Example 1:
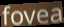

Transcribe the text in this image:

fovea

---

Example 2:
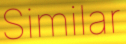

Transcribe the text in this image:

Similar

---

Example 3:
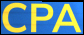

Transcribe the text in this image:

CPA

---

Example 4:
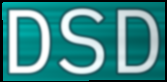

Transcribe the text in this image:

DSD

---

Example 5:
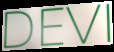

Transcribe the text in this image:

DEVI